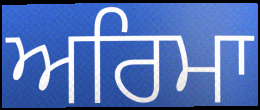
ਅਰਿਮਾ